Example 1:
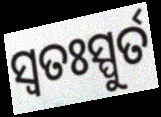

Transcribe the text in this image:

ସ୍ୱତଃସ୍ପୁର୍ତ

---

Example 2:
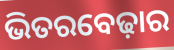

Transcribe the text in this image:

ଭିତରବେଢ଼ାର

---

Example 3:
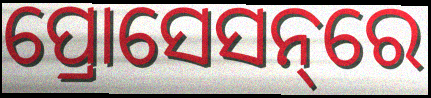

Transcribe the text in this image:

ପ୍ରୋସେସନ୍‌ରେ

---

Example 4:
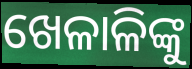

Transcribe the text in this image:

ଖେଳାଳିଙ୍କୁ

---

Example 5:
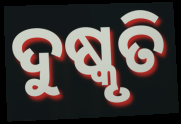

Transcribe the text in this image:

ଦୁଷ୍କୃତି